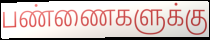
பண்ணைகளுக்கு